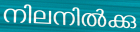
നിലനിൽക്കു